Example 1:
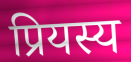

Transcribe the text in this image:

प्रियस्य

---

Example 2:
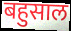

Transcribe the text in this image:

बहुसाल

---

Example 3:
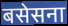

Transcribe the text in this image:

बसेसना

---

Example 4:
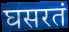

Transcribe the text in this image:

घसरतं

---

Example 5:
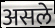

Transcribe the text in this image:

असले